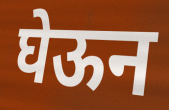
घेऊन